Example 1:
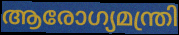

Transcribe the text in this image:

ആരോഗ്യമന്ത്രി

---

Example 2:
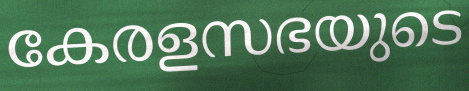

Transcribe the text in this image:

കേരളസഭയുടെ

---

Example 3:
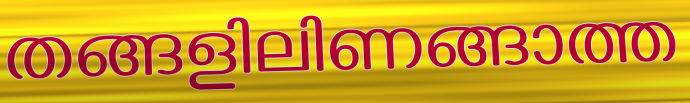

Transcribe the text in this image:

തങ്ങളിലിണങ്ങാത്ത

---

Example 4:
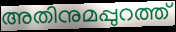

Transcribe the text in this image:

അതിനുമപ്പുറത്ത്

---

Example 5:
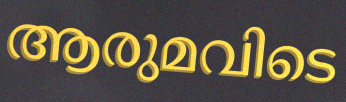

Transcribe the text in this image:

ആരുമവിടെ